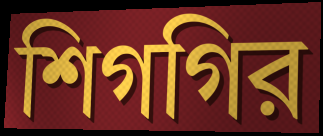
শিগগির